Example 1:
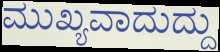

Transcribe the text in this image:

ಮುಖ್ಯವಾದುದ್ದು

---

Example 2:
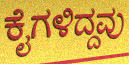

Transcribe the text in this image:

ಕೈಗಳಿದ್ದವು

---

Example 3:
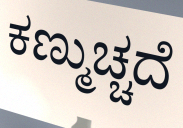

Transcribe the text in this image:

ಕಣ್ಮುಚ್ಚದೆ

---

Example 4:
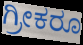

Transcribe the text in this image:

ಗ್ರೀಕರೂ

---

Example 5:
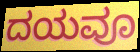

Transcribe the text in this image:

ದಯವೂ